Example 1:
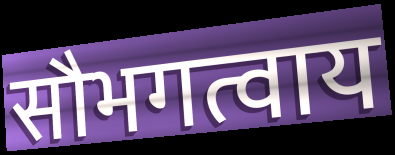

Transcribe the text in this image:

सौभगत्वाय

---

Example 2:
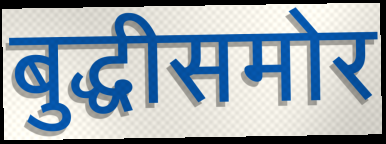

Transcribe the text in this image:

बुद्धीसमोर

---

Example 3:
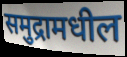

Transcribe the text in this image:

समुद्रामधील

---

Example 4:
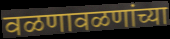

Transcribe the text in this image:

वळणावळणांच्या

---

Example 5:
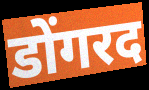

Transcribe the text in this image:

डोंगरद